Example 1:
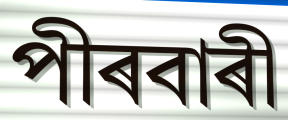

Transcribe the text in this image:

পীৰবাৰী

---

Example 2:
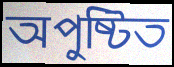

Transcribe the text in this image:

অপুষ্টিত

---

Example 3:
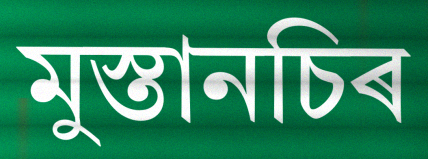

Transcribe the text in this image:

মুস্তানচিৰ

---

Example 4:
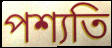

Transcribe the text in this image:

পশ্যতি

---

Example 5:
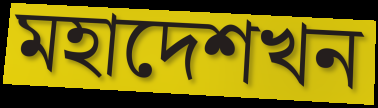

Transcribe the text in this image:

মহাদেশখন